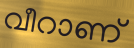
വീറാണ്